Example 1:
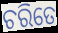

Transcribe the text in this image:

ଚରିତେ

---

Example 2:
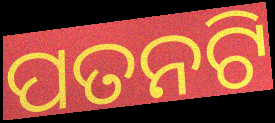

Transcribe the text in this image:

ପତନଟି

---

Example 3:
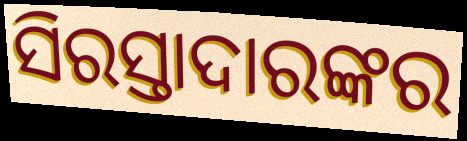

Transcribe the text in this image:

ସିରସ୍ତାଦାରଙ୍କର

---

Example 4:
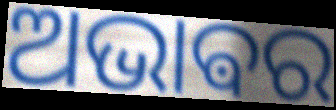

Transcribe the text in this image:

ଅଭାଵର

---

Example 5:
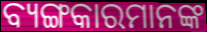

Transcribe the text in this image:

ବ୍ୟଙ୍ଗକାରମାନଙ୍କ